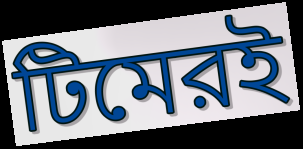
টিমেরই